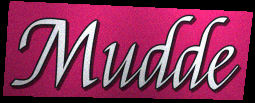
Mudde